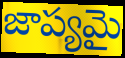
జాప్యమై